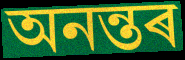
অনন্তৰ